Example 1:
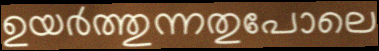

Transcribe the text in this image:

ഉയർത്തുന്നതുപോലെ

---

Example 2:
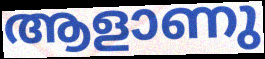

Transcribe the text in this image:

ആളാണു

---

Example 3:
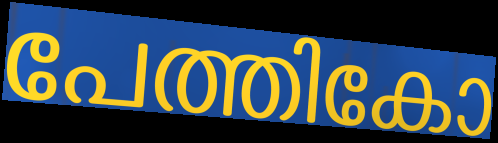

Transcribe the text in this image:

പേത്തികോ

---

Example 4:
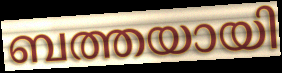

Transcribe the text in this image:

ബത്തയായി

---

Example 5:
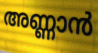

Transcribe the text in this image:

അണ്ണാൻ